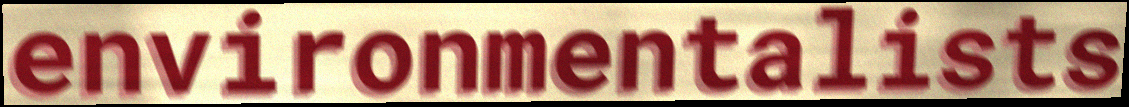
environmentalists